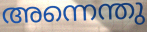
അന്നെന്തു